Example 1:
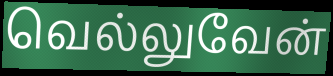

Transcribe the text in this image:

வெல்லுவேன்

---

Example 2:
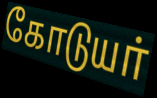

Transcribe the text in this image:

கோடுயர்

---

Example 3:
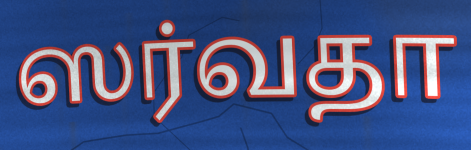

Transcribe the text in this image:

ஸர்வதா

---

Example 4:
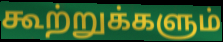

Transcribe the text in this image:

கூற்றுக்களும்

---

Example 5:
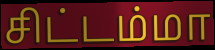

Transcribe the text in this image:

சிட்டம்மா